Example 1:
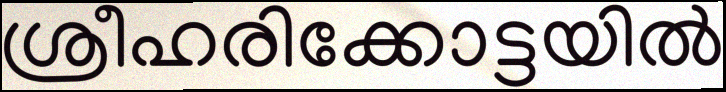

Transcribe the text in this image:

ശ്രീഹരിക്കോട്ടയിൽ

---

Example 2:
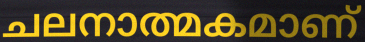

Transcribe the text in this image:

ചലനാത്മകമാണ്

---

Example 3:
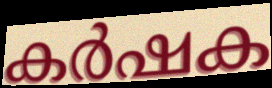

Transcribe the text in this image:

കർഷക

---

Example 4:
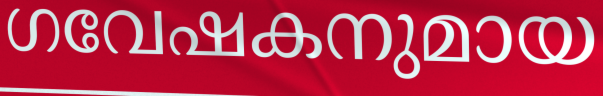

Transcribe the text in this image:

ഗവേഷകനുമായ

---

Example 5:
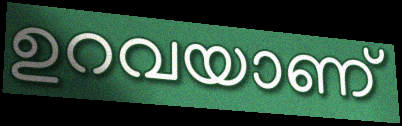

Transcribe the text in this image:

ഉറവയാണ്